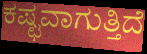
ಕಷ್ಟವಾಗುತ್ತಿದೆ